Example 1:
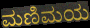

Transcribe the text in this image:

ಮಣಿಮಯ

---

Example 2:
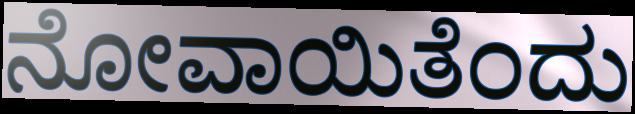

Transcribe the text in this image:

ನೋವಾಯಿತೆಂದು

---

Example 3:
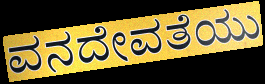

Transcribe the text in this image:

ವನದೇವತೆಯು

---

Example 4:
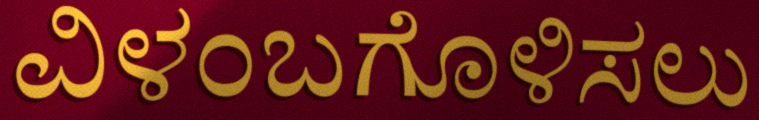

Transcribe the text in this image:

ವಿಳಂಬಗೊಳಿಸಲು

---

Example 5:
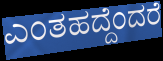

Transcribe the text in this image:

ಎಂತಹದ್ದೆಂದರೆ